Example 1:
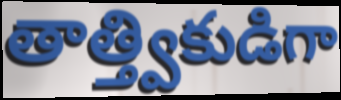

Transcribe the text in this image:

తాత్త్వికుడిగా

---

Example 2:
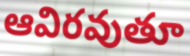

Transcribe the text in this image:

ఆవిరవుతూ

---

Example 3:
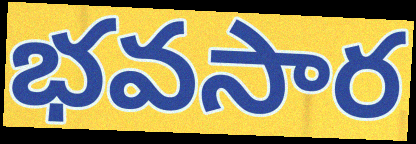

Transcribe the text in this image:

భవసార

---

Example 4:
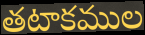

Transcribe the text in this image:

తటాకముల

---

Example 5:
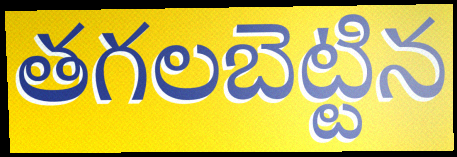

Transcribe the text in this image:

తగలబెట్టిన